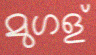
മുഗള്